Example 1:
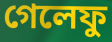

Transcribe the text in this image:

গেলেফু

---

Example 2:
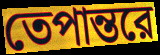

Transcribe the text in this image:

তেপান্তরে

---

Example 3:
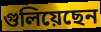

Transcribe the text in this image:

গুলিয়েছেন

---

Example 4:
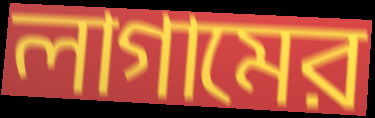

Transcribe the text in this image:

লাগামের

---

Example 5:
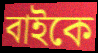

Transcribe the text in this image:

বাইকে